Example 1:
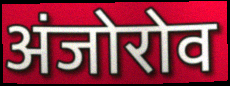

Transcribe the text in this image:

अंजोरोव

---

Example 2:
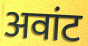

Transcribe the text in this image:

अवांट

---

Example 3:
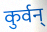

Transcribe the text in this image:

कुर्वन्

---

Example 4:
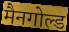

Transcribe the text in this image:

मैनगोल्ड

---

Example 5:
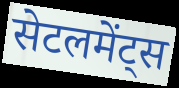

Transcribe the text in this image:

सेटलमेंट्स